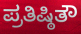
ಪ್ರತಿಷ್ಠಿತೌ